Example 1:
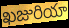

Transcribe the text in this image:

ఖజురియా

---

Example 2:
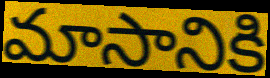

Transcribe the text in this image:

మాసానికి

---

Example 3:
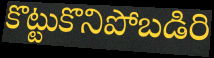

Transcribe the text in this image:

కొట్టుకొనిపోబడిరి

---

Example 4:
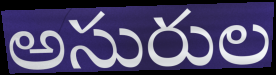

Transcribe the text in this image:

అసురుల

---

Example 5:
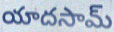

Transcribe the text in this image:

యాదసామ్